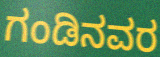
ಗಂಡಿನವರ